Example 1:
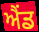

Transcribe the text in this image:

ਐੰਡ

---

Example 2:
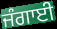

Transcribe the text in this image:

ਜੰਗਾਈ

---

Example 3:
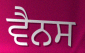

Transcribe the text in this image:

ਵੈਨਸ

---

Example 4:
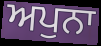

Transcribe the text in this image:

ਅਪੁਨਾ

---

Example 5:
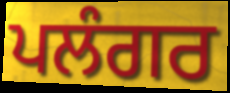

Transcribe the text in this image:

ਪਲੰਗਰ